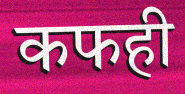
कफही